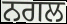
ਨਗਲ